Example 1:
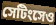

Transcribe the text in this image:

সেটিংসেও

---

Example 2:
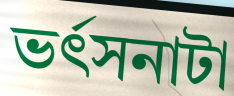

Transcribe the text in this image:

ভর্ৎসনাটা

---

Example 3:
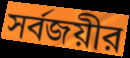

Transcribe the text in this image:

সর্বজয়ীর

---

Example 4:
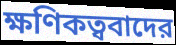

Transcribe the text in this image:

ক্ষণিকত্ববাদের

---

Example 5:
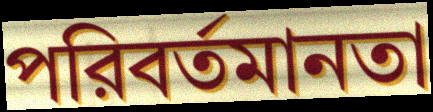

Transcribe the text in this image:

পরিবর্তমানতা